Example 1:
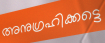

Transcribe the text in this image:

അനുഗ്രഹിക്കട്ടെ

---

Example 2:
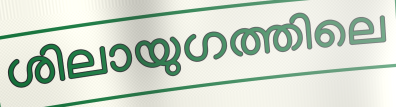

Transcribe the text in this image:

ശിലായുഗത്തിലെ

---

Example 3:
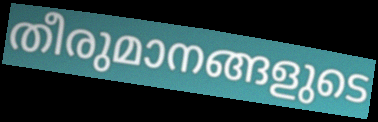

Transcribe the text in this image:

തീരുമാനങ്ങളുടെ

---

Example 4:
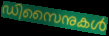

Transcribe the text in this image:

ഡിസൈനുകൾ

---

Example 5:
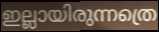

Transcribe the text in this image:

ഇല്ലായിരുന്നത്രെ